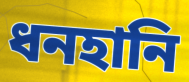
ধনহানি